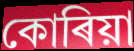
কোৰিয়া